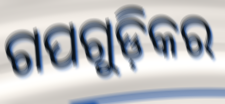
ଗପଗୁଡ଼ିକର